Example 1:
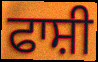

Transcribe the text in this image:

ਫਾਸ਼ੀ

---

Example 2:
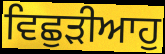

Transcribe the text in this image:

ਵਿਛੁੜੀਆਹੁ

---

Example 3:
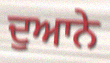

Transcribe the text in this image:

ਦੁਆਨੇ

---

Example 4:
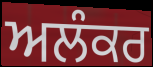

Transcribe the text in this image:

ਅਲੰਕਰ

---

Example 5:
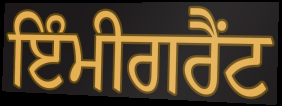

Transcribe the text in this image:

ਇੰਮੀਗਰੈਂਟ